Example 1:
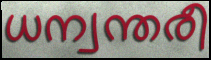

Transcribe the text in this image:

ധന്വന്തരീ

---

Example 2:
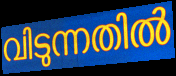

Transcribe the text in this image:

വിടുന്നതിൽ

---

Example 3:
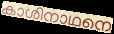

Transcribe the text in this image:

കാശിനാഥനെ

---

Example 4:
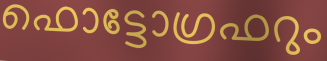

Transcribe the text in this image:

ഫൊട്ടോഗ്രഫറും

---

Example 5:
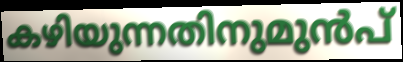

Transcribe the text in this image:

കഴിയുന്നതിനുമുൻപ്